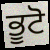
ਭੂਟੋ